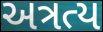
અત્રત્ય